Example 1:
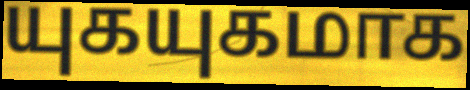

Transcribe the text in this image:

யுகயுகமாக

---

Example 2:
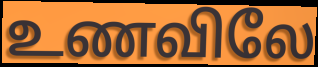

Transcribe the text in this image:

உணவிலே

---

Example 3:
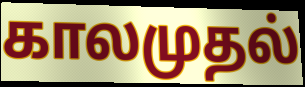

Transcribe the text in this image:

காலமுதல்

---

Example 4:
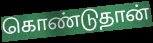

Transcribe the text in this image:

கொண்டுதான்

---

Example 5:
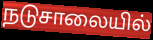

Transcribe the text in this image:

நடுசாலையில்